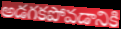
అడగకపోవడానికి